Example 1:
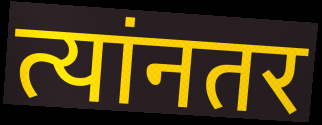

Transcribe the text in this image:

त्यांनतर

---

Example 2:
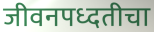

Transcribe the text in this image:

जीवनपध्दतीचा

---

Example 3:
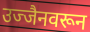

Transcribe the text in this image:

उज्जैनवरून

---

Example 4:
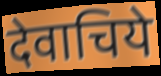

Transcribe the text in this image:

देवाचिये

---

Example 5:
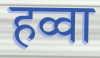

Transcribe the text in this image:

हव्वा